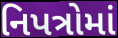
નિપત્રોમાં